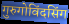
गुरुगोविंदसिंग